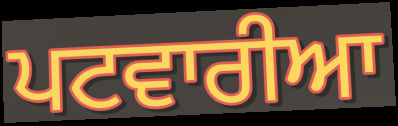
ਪਟਵਾਰੀਆ